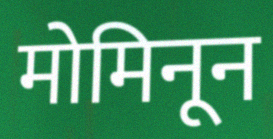
मोमिनून